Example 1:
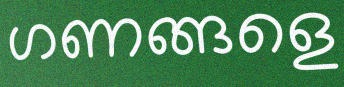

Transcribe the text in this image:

ഗണങ്ങളെ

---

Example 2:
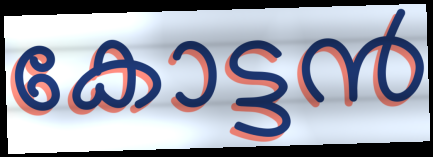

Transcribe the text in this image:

കോട്ടൻ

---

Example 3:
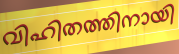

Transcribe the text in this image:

വിഹിതത്തിനായി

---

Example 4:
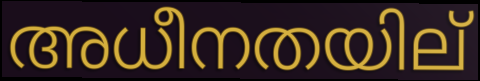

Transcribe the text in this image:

അധീനതയില്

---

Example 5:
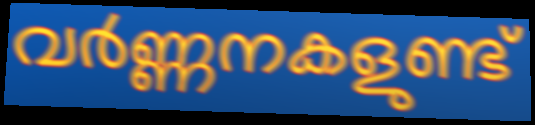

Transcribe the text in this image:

വർണ്ണനകളുണ്ട്